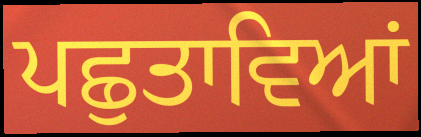
ਪਛੁਤਾਵਿਆਂ